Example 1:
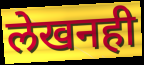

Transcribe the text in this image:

लेखनही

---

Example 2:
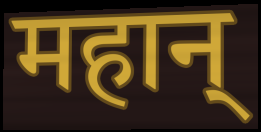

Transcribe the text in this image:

महान्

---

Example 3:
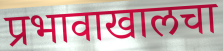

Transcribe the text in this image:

प्रभावाखालचा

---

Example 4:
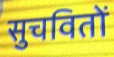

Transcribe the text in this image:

सुचवितों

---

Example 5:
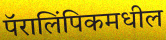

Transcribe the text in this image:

पॅरालिंपिकमधील